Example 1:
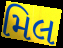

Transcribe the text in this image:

મિલ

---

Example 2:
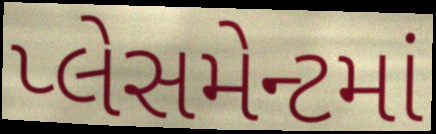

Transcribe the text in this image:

પ્લેસમેન્ટમાં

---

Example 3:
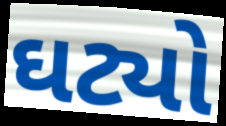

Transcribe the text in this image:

ઘટ્યો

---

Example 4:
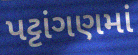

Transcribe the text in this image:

પટ્ટાંગણમાં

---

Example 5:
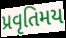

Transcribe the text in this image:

પ્રવૃતિમય